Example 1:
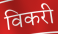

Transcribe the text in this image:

विकरी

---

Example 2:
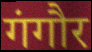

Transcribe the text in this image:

गंगौर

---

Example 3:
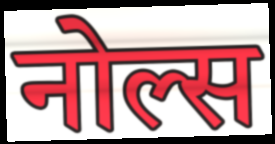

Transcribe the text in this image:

नोल्स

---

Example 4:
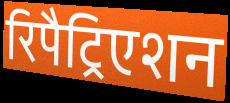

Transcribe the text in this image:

रिपैट्रिएशन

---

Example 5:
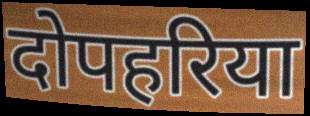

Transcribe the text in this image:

दोपहरिया